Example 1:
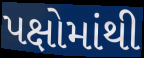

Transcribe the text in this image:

પક્ષોમાંથી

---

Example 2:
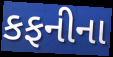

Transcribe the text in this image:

કફનીના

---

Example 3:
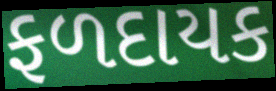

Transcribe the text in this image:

ફળદાયક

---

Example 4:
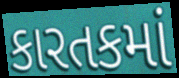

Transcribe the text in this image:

કારતકમાં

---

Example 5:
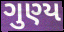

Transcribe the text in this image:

ગુણ્ય